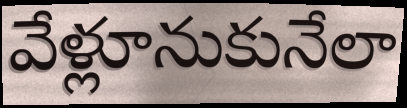
వేళ్లూనుకునేలా